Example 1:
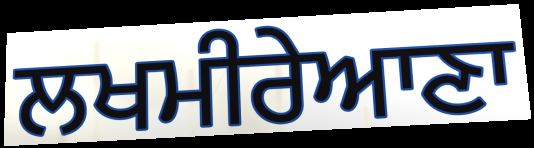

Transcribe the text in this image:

ਲਖਮੀਰੇਆਣਾ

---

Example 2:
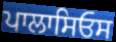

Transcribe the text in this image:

ਪਾਲਾਸਿਓਸ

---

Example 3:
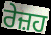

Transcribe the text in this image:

ਰੇਜ਼ਹ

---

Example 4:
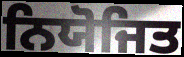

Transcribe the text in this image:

ਨਿਯੋਜਿਤ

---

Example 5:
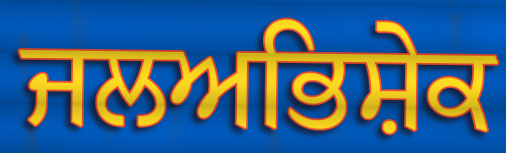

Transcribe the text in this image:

ਜਲਅਭਿਸ਼ੇਕ